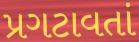
પ્રગટાવતાં